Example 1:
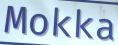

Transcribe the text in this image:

Mokka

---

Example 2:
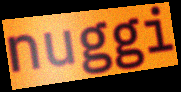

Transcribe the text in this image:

nuggi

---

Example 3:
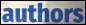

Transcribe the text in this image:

authors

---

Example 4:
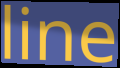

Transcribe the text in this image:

line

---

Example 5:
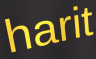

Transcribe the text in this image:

harit